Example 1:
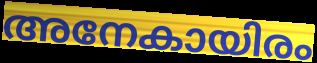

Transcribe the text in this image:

അനേകായിരം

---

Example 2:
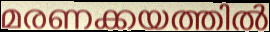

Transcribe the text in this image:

മരണക്കയത്തിൽ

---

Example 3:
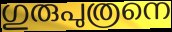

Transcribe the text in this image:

ഗുരുപുത്രനെ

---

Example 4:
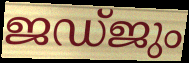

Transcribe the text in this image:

ജഡ്ജും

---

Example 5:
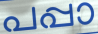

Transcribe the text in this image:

പപ്പാ